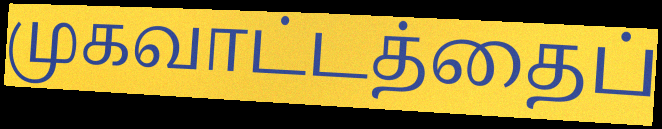
முகவாட்டத்தைப்